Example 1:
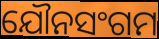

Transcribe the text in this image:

ଯୌନସଂଗମ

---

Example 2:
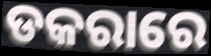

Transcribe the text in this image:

ଡକରାରେ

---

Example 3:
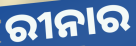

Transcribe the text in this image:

ରୀନାର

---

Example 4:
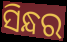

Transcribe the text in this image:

ସିନ୍ଧର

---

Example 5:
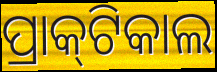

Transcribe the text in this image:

ପ୍ରାକ୍‌ଟିକାଲ